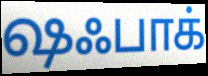
ஷஃபாக்